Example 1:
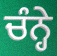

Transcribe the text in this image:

ਚੰਨ੍ਹੇ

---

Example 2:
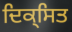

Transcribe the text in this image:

ਦਿਕ੍ਸਿਤ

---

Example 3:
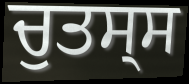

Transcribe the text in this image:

ਚੁਤਸ੍ਸ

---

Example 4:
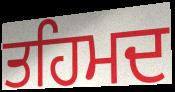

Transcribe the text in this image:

ਤਹਿਮਦ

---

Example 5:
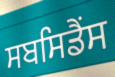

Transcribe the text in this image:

ਸਬਸਿਡੈਂਸ